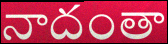
నాదంతా